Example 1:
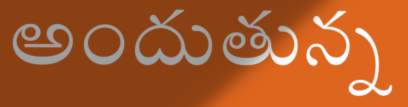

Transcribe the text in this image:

అందుతున్న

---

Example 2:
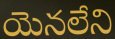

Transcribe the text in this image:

యెనలేని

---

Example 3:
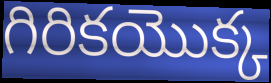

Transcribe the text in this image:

గిరికయొక్క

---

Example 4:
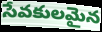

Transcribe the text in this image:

సేవకులమైన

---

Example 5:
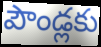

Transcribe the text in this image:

పౌండ్లకు